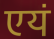
एयं